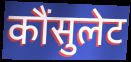
कौंसुलेट